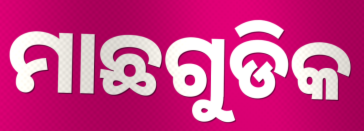
ମାଛଗୁଡିକ